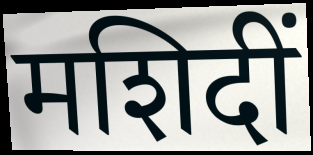
मशिदीं